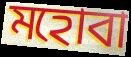
মহোবা